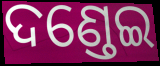
ଦଣ୍ଡେଇ